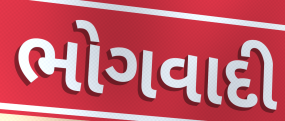
ભોગવાદી